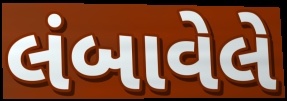
લંબાવેલે